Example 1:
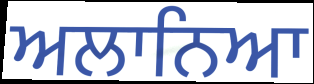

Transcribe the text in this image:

ਅਲਾਨਿਆ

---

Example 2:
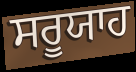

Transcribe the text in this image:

ਸਰੂਯਾਹ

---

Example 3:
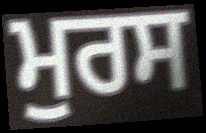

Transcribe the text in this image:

ਮੁਰਸ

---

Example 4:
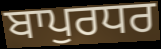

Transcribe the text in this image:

ਬਾਪੁਰਧਰ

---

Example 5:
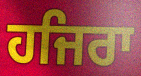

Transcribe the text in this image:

ਹਜਿਰਾ